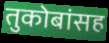
तुकोबांसह